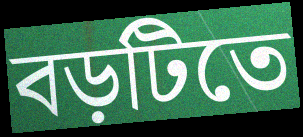
বড়টিতে